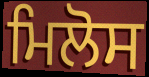
ਮਿਲੋਸ